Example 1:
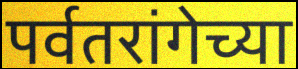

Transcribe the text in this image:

पर्वतरांगेच्या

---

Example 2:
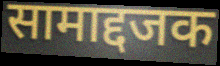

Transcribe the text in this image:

सामाद्दजक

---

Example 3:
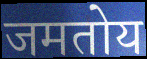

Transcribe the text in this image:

जमतोय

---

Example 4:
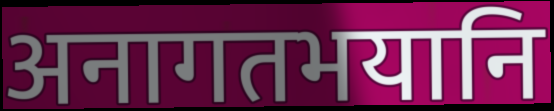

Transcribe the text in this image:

अनागतभयानि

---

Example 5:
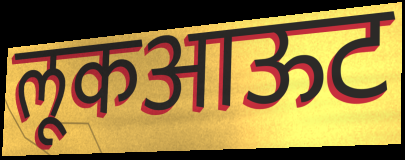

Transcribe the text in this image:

लूकआऊट